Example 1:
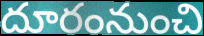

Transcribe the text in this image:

దూరంనుంచి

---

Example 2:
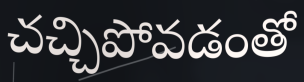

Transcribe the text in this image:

చచ్చిపోవడంతో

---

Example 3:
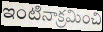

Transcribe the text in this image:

ఇంటినాక్రమించి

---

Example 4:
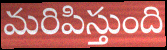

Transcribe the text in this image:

మరిపిస్తుంది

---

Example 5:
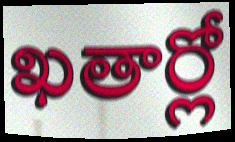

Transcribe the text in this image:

ఖతార్లో